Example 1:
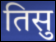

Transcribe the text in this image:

तिसु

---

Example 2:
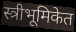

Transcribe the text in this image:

स्त्रीभूमिकेत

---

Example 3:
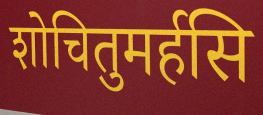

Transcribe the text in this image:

शोचितुमर्हसि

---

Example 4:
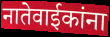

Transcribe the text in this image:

नातेवाईकांना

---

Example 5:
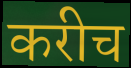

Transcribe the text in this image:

करीच